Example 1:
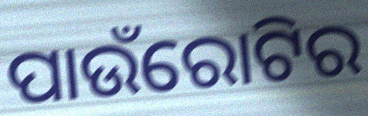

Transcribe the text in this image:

ପାଉଁରୋଟିର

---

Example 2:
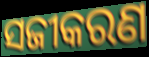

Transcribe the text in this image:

ସଜୀକରଣ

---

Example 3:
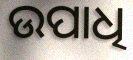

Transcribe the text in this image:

ଉପାଧି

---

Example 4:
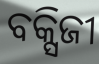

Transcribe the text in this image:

ବକ୍ସିଜୀ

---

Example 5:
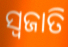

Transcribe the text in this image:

ସ୍ୱଜାତି